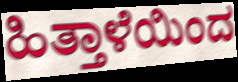
ಹಿತ್ತಾಳೆಯಿಂದ